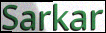
Sarkar